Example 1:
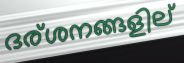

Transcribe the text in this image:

ദര്ശനങ്ങളില്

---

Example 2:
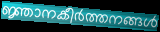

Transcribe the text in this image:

ജ്ഞാനകീർത്തനങ്ങൾ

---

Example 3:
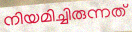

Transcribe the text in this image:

നിയമിച്ചിരുന്നത്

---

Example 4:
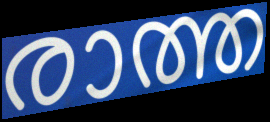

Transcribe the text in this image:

രാത്ത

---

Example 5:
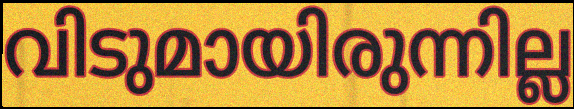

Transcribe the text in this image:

വിടുമായിരുന്നില്ല